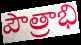
పౌత్రాభి